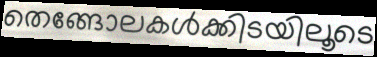
തെങ്ങോലകൾക്കിടയിലൂടെ